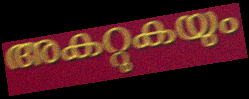
അകറ്റുകയും